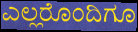
ಎಲ್ಲರೊಂದಿಗೂ